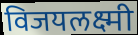
विजयलक्ष्मी